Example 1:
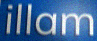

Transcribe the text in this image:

illam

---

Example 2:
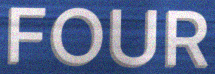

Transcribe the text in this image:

FOUR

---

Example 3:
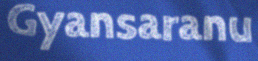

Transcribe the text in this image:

Gyansaranu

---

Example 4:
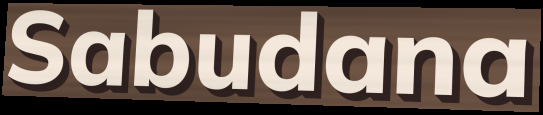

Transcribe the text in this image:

Sabudana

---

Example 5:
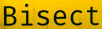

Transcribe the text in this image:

Bisect